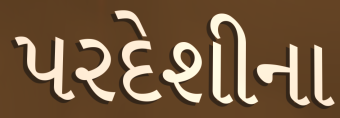
પરદેશીના